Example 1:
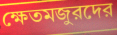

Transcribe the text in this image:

ক্ষেতমজুরদের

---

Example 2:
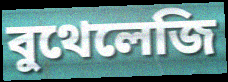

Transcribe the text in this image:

বুথেলেজি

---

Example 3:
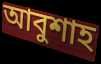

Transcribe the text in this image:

আবুশাহ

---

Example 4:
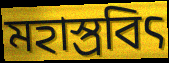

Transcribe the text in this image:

মহাস্ত্রবিৎ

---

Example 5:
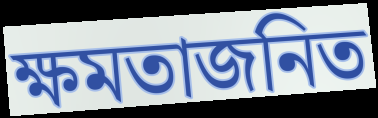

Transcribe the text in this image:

ক্ষমতাজনিত